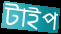
টাইপ